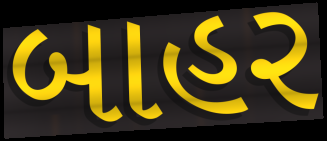
બાહર